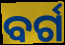
ବର୍ଗ